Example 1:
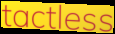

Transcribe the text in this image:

tactless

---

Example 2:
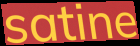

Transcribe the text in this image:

satine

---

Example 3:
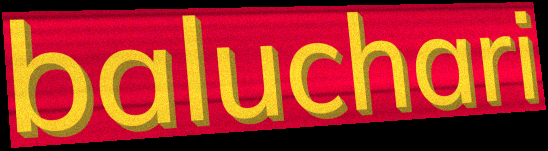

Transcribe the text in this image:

baluchari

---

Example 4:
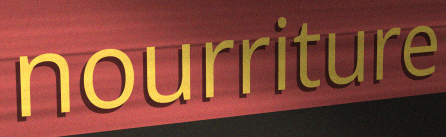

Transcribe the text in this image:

nourriture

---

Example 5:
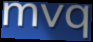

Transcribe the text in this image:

mvq